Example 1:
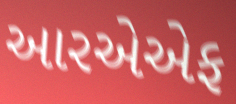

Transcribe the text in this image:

આરએએફ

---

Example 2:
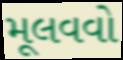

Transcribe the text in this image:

મૂલવવો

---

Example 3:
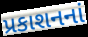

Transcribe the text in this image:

પ્રકાશનનાં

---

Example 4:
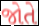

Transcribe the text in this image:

જોતે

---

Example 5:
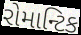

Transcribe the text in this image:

રોમાન્ટિક